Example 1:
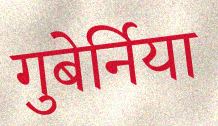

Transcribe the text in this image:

गुबेर्निया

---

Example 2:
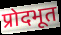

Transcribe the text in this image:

प्रोदभूत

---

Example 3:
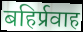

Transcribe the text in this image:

बहिर्प्रवाह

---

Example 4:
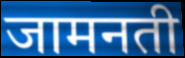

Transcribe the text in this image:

जामनती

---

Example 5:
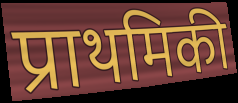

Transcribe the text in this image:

प्राथमिकी